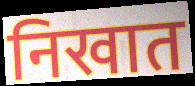
निखात